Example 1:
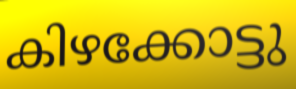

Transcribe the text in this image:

കിഴക്കോട്ടു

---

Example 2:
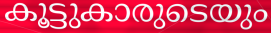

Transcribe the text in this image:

കൂട്ടുകാരുടെയും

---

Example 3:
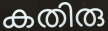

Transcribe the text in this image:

കതിരു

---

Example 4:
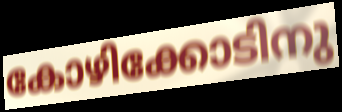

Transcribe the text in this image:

കോഴിക്കോടിനു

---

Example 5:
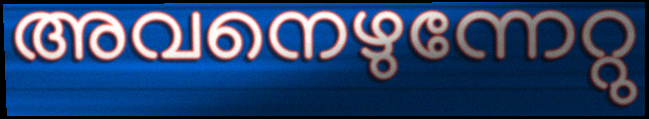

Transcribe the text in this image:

അവനെഴുന്നേറ്റു